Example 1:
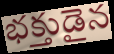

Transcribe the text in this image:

భక్తుడైన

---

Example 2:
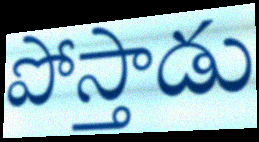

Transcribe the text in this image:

పోస్తాడు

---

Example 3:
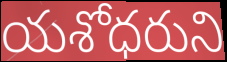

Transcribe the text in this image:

యశోధరుని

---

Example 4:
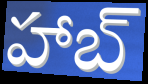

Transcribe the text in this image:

హాబ్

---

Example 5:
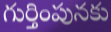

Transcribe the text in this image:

గుర్తింపునకు